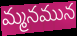
మ్మనమున